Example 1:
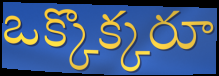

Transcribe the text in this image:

ఒక్కొక్కరూ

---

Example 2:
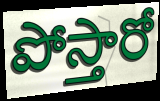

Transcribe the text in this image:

పోస్తారో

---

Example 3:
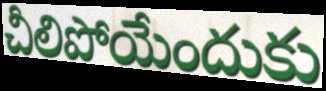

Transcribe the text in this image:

చీలిపోయేందుకు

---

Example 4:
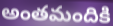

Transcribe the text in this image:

అంతమందికి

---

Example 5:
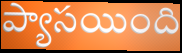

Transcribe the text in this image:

ప్యాసయింది